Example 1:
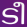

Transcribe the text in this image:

ടീ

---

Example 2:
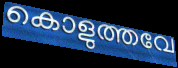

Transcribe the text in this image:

കൊളുത്തവേ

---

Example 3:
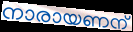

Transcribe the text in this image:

നാരായണന്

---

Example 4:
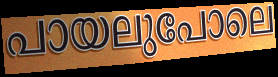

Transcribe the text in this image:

പായലുപോലെ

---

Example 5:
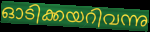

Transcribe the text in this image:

ഓടിക്കയറിവന്നു